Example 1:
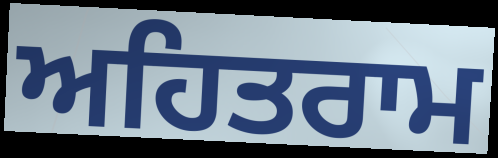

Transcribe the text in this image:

ਅਹਿਤਰਾਮ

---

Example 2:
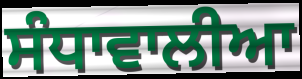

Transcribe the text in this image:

ਸੰਧਾਵਾਲੀਆ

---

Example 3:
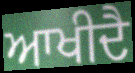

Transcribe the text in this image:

ਆਖੀਦੈ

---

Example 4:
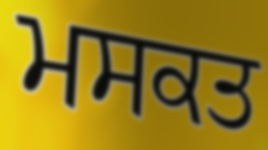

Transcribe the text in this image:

ਮਸਕਤ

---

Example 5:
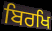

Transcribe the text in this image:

ਬਿਰਖਿ